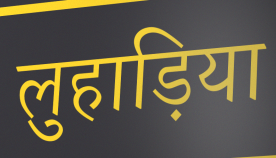
लुहाड़िया